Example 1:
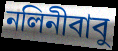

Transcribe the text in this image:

নলিনীবাবু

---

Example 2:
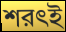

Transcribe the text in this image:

শরৎই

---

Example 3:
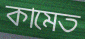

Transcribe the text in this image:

কামেত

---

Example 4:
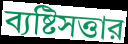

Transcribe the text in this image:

ব্যষ্টিসত্তার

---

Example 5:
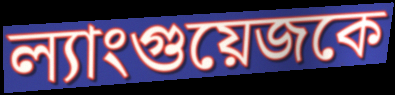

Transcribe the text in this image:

ল্যাংগুয়েজকে